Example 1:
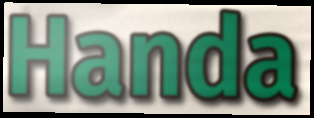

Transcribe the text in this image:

Handa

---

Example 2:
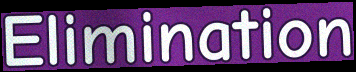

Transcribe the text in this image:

Elimination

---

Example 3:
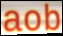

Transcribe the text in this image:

aob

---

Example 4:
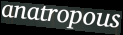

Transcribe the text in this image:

anatropous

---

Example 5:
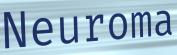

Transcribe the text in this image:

Neuroma